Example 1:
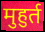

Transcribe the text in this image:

मुहुर्त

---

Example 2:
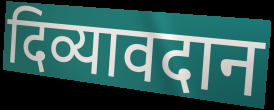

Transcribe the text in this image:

दिव्यावदान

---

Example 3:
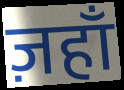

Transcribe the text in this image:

ज़हाँ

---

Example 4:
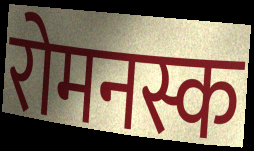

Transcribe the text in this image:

रोमनस्क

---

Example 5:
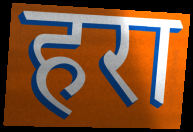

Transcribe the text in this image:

हरा